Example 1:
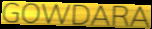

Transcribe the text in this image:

GOWDARA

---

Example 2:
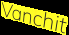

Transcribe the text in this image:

Vanchit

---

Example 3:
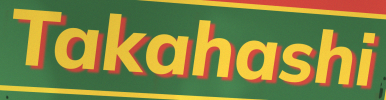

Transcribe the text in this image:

Takahashi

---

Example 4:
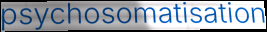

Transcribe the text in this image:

psychosomatisation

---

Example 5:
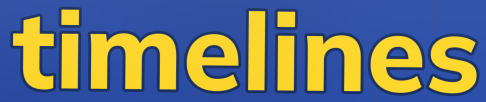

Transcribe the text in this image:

timelines